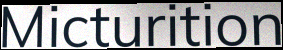
Micturition